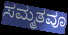
ಸಮ್ಮತವೂ